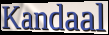
Kandaal